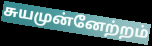
சுயமுன்னேற்றம்